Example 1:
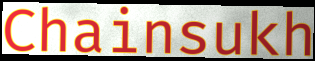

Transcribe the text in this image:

Chainsukh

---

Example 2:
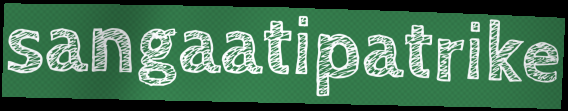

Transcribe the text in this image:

sangaatipatrike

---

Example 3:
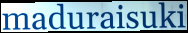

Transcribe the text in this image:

maduraisuki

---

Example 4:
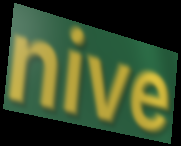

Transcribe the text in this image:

nive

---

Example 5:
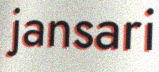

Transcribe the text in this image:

jansari